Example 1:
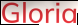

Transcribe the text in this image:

Gloria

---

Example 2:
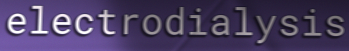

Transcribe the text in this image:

electrodialysis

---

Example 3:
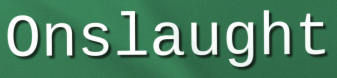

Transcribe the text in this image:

Onslaught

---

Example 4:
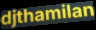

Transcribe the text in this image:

djthamilan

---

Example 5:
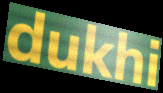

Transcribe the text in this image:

dukhi